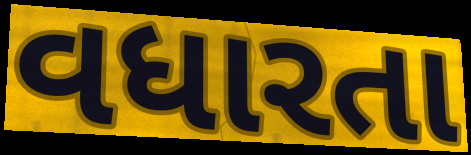
વધારતા